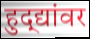
हुद्द्यांवर